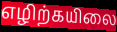
எழிற்கயிலை